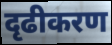
दृढीकरण